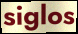
siglos